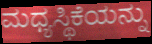
ಮಧ್ಯಸ್ಥಿಕೆಯನ್ನು